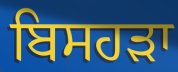
ਬਿਸਹੜਾ